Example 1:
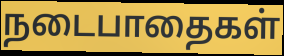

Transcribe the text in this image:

நடைபாதைகள்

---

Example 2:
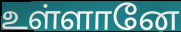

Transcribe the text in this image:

உள்ளானே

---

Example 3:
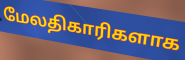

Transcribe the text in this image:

மேலதிகாரிகளாக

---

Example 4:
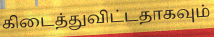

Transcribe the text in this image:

கிடைத்துவிட்டதாகவும்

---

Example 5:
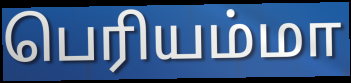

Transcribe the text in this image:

பெரியம்மா